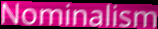
Nominalism